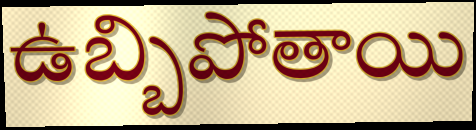
ఉబ్బిపోతాయి